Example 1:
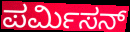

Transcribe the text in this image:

ಪರ್ಮಿಸನ್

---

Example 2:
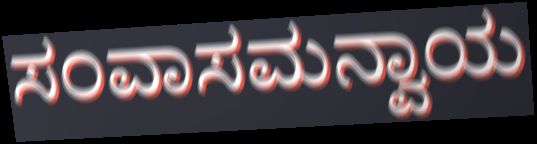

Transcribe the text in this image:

ಸಂವಾಸಮನ್ವಾಯ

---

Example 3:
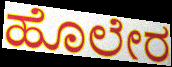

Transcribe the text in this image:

ಹೊಲೇರ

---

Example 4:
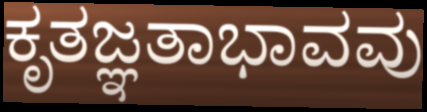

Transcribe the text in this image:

ಕೃತಜ್ಞತಾಭಾವವು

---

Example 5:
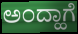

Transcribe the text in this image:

ಅಂದ್ಹಾಗೆ